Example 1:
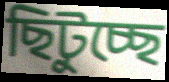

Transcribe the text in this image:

ছিটুচ্ছে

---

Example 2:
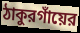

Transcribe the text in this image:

ঠাকুরগাঁয়ের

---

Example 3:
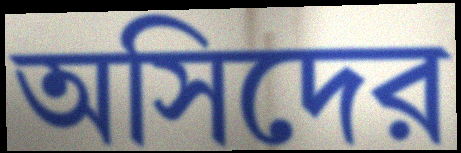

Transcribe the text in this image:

অসিদের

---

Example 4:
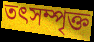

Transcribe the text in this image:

তৎসম্পৃক্ত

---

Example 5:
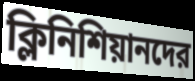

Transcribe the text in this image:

ক্লিনিশিয়ানদের